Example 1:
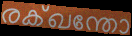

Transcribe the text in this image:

രക്ഖന്തോ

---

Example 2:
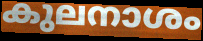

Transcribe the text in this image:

കുലനാശം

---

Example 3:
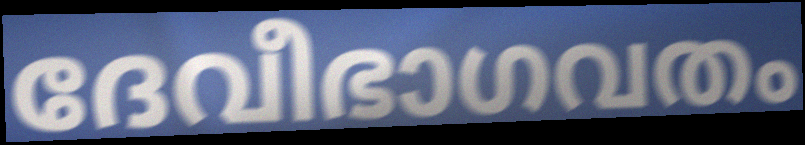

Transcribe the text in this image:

ദേവീഭാഗവതം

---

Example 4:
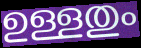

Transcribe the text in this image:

ഉള്ളതും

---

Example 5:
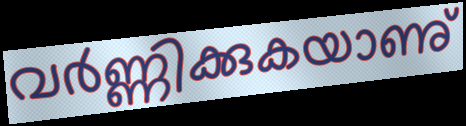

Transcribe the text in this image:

വർണ്ണിക്കുകയാണു്